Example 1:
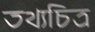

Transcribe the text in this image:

তথ্যচিত্র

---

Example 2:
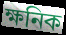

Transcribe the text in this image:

ক্ষনিক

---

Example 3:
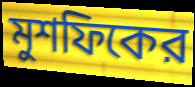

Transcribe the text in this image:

মুশফিকের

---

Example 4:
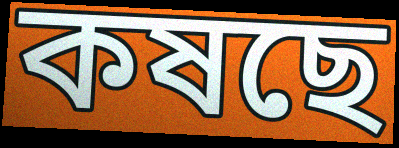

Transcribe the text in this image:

কষছে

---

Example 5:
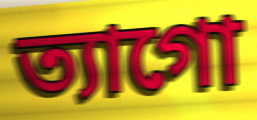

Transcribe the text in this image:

ত্যাগো